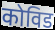
कोविड